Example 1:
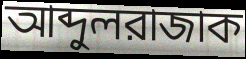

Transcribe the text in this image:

আব্দুলরাজাক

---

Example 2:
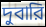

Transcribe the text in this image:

দুবারি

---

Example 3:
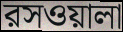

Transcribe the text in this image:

রসওয়ালা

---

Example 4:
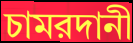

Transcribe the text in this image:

চামরদানী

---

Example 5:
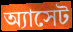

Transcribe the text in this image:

অ্যাসেট